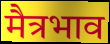
मैत्रभाव